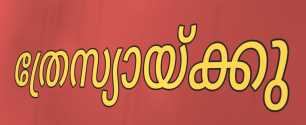
ത്രേസ്യായ്ക്കു